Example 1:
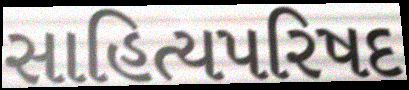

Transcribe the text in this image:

સાહિત્યપરિષદ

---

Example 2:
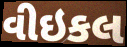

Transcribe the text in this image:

વીઇકલ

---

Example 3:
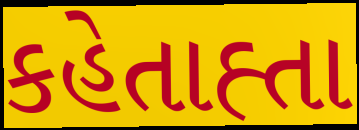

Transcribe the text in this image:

કહેતાહ્તા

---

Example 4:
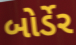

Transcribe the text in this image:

બોર્ડેર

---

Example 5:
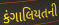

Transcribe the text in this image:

કંગાલિયતની